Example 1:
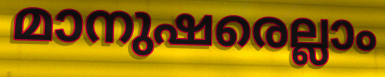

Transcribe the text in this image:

മാനുഷരെല്ലാം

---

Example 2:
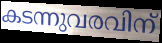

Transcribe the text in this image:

കടന്നുവരവിന്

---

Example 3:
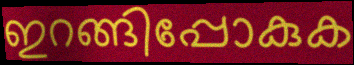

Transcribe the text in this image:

ഇറങ്ങിപ്പോകുക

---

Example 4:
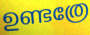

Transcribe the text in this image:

ഉണ്ടത്രേ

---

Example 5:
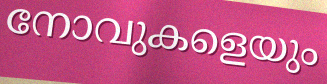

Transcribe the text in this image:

നോവുകളെയും